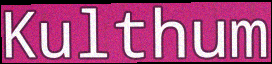
Kulthum